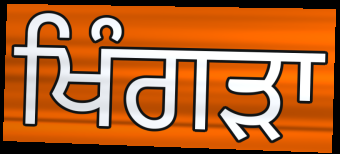
ਖਿੰਗੜਾ